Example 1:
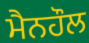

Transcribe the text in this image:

ਮੈਨਹੌਲ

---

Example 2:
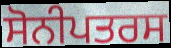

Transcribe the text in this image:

ਸੋਨੀਪਤਰਸ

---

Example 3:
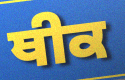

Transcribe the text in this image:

ਥੀਕ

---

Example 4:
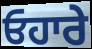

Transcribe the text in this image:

ਓਹਾਰੇ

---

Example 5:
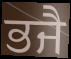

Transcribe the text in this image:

ਭਜੈ